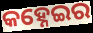
କହ୍ନେଇର